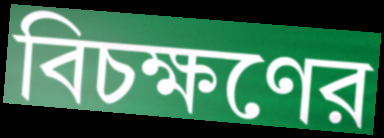
বিচক্ষণের